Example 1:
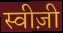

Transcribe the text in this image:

स्वीज़ी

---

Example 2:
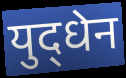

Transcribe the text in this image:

युद्धेन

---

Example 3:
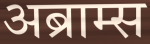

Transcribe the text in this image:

अब्राम्स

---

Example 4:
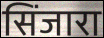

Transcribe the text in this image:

सिंजारा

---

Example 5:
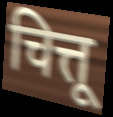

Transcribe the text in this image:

चित्तू